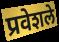
प्रवेशले